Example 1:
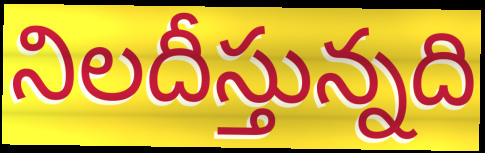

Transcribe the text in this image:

నిలదీస్తున్నది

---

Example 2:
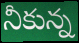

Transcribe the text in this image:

నీకున్న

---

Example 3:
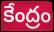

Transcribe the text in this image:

కేంద్రం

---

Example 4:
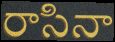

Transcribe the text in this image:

రాసినా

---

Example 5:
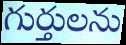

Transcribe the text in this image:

గుర్తులను